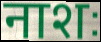
नाशः